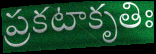
ప్రకటాకృతిః